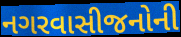
નગરવાસીજનોની